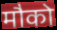
मौको